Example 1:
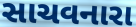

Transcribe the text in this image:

સાચવનારા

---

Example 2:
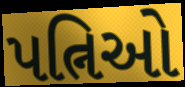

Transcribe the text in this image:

પત્નિઓ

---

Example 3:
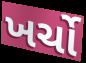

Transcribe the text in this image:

ખર્ચો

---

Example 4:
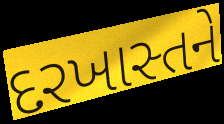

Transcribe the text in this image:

દરખાસ્તને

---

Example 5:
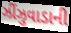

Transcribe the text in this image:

ઝીંઝુવાડાની